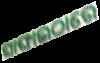
ସାଙ୍ଘାଇଠାରେ